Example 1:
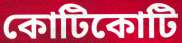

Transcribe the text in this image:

কোটিকোটি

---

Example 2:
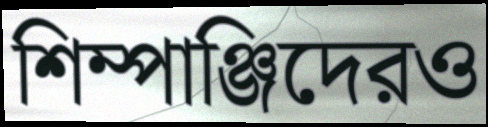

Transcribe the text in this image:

শিম্পাঞ্জিদেরও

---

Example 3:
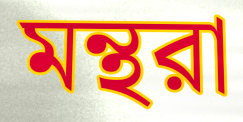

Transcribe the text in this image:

মন্থরা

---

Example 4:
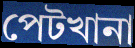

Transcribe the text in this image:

পেটখানা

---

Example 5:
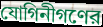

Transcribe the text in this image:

যোগিনীগণের